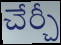
చేర్చీ